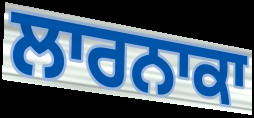
ਲਾਰਨਾਕਾ